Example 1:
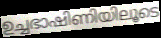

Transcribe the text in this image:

ഉച്ചഭാഷിണിയിലൂടെ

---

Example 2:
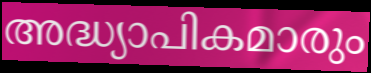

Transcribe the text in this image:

അദ്ധ്യാപികമാരും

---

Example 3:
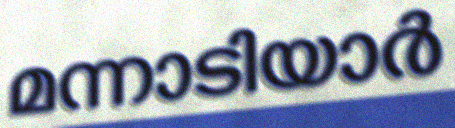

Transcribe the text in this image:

മന്നാടിയാർ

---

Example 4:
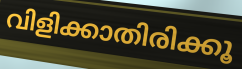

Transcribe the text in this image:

വിളിക്കാതിരിക്കൂ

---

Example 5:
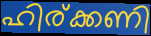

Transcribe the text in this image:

ഹിര്ക്കണി